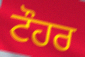
ਟੌਹਰ